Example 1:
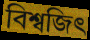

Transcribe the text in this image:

বিশ্বজিৎ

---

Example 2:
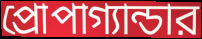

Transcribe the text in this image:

প্রোপাগ্যান্ডার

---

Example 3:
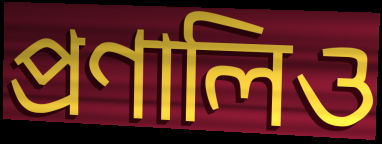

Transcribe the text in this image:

প্রণালিও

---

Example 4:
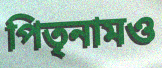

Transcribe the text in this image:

পিতৃনামও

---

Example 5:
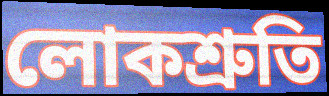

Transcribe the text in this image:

লোকশ্রুতি